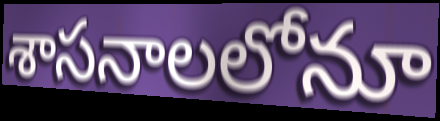
శాసనాలలోనూ